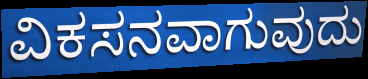
ವಿಕಸನವಾಗುವುದು